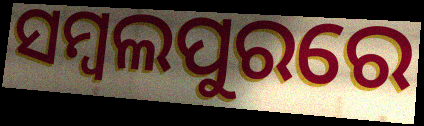
ସମ୍ବଲପୁରରେ